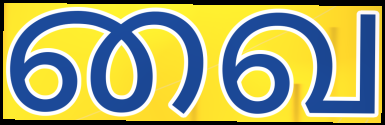
வை